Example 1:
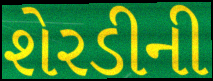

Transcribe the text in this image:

શેરડીની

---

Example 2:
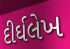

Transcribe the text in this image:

દીર્ઘલેખ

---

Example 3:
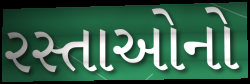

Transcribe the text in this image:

રસ્તાઓનો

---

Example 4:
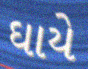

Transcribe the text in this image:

ઘાયે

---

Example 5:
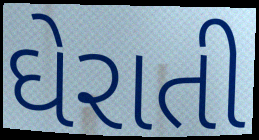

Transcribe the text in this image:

ઘેરાતી